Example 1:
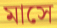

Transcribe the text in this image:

মাসে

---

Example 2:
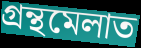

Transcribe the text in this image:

গ্ৰন্থমেলাত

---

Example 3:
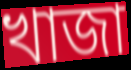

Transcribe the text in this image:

খাজা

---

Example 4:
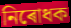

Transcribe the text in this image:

নিৰোধক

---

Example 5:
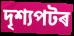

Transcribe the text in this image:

দৃশ্যপটৰ